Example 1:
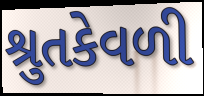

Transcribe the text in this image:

શ્રુતકેવળી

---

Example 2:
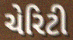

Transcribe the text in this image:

ચેરિટી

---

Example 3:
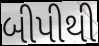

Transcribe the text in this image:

બીપીથી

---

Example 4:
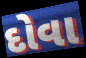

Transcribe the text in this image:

દોવા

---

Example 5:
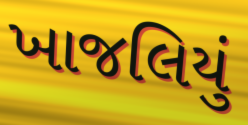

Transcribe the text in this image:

ખાજલિયું